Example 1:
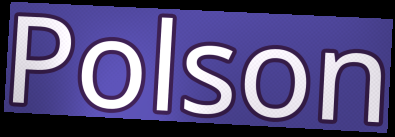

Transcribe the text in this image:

Polson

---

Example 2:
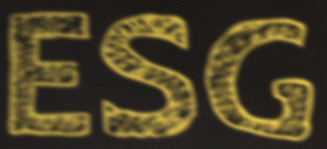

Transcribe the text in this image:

ESG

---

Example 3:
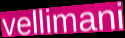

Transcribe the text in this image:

vellimani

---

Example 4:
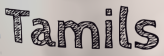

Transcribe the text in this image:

Tamils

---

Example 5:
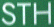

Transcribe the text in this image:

STH